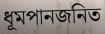
ধূমপানজনিত